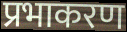
प्रभाकरण